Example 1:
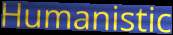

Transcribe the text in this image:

Humanistic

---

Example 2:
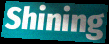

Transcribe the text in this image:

Shining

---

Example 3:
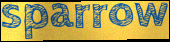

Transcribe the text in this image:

sparrow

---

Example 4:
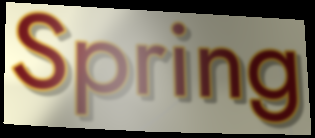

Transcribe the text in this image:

Spring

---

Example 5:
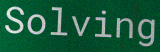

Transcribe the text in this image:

Solving